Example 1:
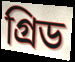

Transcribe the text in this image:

গ্রিড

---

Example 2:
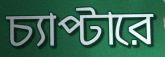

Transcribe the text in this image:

চ্যাপ্টারে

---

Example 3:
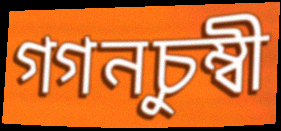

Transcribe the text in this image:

গগনচুম্বী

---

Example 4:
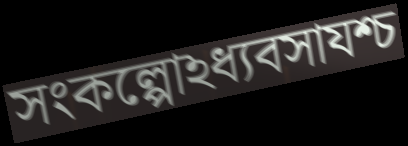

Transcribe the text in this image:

সংকল্পোঽধ্যবসাযশ্চ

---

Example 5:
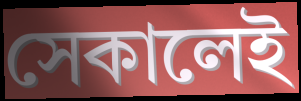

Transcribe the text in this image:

সেকালেই